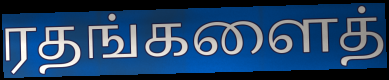
ரதங்களைத்